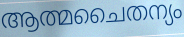
ആത്മചൈതന്യം